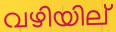
വഴിയില്